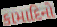
કામાદિનો